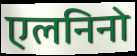
एलनिनो